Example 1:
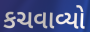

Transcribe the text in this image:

કચવાવ્યો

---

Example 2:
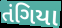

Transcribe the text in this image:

તંગિયા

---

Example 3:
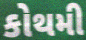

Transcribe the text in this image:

કોથમી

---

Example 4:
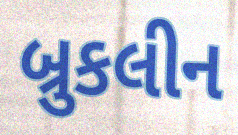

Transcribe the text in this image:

બ્રુકલીન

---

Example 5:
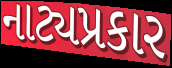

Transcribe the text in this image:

નાટ્યપ્રકાર